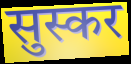
सुस्कर